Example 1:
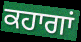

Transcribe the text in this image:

ਕਹਾਗਾਂ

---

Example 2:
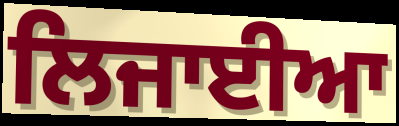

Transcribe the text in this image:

ਲਿਜਾਈਆ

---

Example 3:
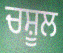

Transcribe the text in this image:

ਚਸ਼ੂਲ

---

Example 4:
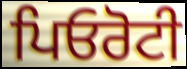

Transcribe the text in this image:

ਪਿਓਰੋਟੀ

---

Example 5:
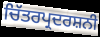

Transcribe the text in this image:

ਚਿੱਤਰਪ੍ਰਦਰਸ਼ਨੀ